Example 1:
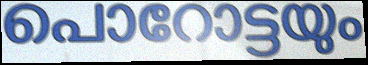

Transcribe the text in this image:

പൊറോട്ടയും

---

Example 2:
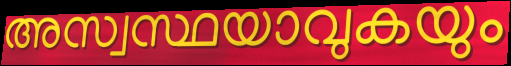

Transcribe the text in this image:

അസ്വസ്ഥയാവുകയും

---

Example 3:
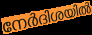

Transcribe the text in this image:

നേർദിശയിൽ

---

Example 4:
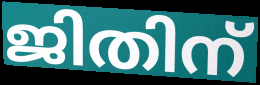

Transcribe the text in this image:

ജിതിന്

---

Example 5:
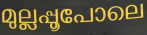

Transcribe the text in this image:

മുല്ലപ്പൂപോലെ